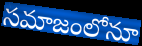
సమాజంలోనూ